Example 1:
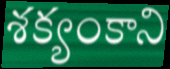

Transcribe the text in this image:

శక్యంకాని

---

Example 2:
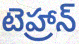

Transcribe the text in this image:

టెహ్రాన్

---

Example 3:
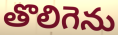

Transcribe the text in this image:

తొలిగెను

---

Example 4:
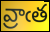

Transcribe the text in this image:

వ్రాఁత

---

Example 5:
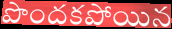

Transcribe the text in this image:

పొందకపోయిన